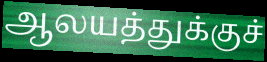
ஆலயத்துக்குச்